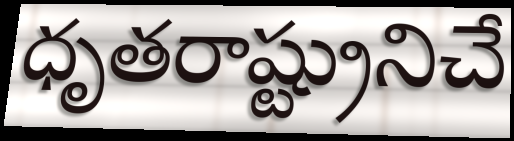
ధృతరాష్ట్రునిచే